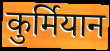
कुर्मियान